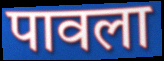
पावला